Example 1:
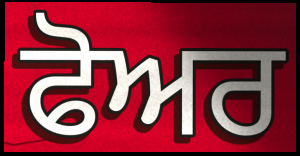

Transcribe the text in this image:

ਫੋਅਰ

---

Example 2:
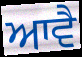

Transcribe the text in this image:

ਆਵੈ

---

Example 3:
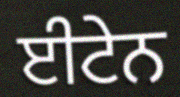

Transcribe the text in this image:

ਈਟੇਨ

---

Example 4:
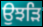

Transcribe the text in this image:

ਉਝੜਿ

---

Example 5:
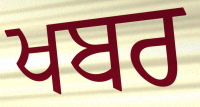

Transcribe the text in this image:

ਖਬਰ